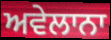
ਅਵੇਲਾਨਾ